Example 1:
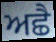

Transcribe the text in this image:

ਅਛੈ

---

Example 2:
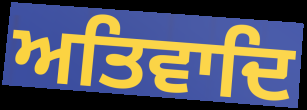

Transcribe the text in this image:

ਅਤਿਵਾਦਿ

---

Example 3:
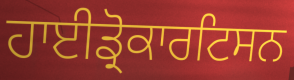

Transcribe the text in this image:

ਹਾਈਡ੍ਰੋਕਾਰਟਿਸਨ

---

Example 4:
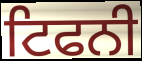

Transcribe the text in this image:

ਟਿਫਨੀ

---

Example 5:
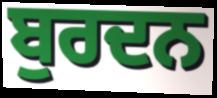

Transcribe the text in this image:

ਬੁਰਦਨ